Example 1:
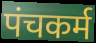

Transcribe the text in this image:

पंचकर्म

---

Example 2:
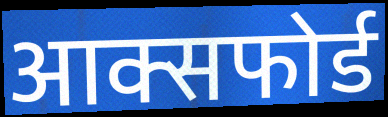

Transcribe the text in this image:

आक्सफोर्ड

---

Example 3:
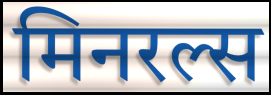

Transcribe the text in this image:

मिनरल्स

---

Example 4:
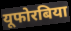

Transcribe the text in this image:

यूफोरबिया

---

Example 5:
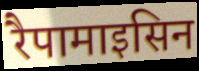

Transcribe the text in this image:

रैपामाइसिन